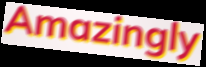
Amazingly